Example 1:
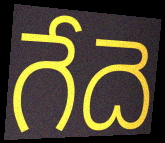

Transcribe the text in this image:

గేదె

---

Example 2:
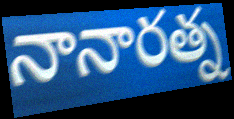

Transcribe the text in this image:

నానారత్న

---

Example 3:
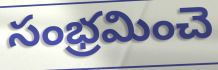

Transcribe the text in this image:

సంభ్రమించె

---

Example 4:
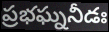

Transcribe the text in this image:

ప్రభఘ్ననీడః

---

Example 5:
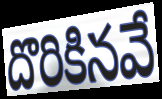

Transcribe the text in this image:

దొరికినవే